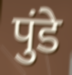
पुंडे